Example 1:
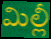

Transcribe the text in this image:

మిల్లీ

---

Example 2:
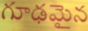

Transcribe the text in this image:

గూఢమైన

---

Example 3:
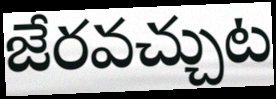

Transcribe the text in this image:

జేరవచ్చుట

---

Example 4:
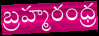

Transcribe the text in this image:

బ్రహ్మరంధ్ర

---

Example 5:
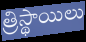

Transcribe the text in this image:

త్రిస్థాయిలు